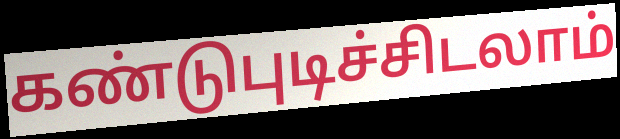
கண்டுபுடிச்சிடலாம்